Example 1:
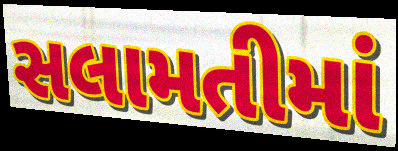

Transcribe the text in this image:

સલામતીમાં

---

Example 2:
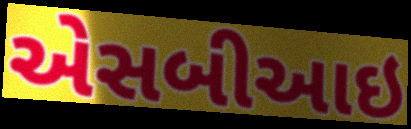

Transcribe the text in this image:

એસબીઆઇ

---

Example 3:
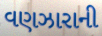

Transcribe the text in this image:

વણઝારાની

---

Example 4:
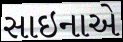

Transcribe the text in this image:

સાઇનાએ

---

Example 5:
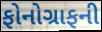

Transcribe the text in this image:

ફોનોગ્રાફની